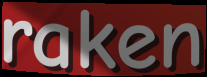
raken